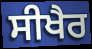
ਸੀਖੈਰ